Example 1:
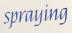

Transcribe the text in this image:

spraying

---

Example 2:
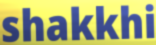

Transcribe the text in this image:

shakkhi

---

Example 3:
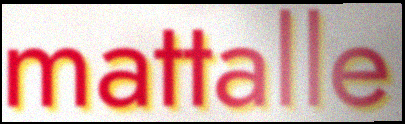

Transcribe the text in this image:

mattalle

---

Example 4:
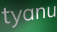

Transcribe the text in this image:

tyanu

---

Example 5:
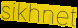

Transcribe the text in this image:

sikhnet